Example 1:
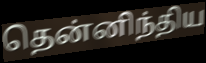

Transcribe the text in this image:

தென்னிந்திய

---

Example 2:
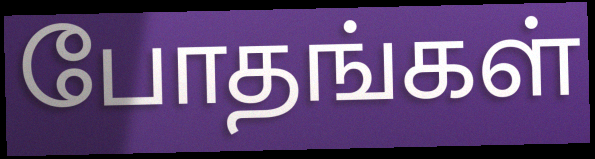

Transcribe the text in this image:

போதங்கள்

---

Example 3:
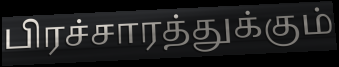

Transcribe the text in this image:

பிரச்சாரத்துக்கும்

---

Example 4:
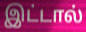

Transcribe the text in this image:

இட்டால்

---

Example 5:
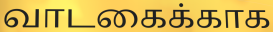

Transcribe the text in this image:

வாடகைக்காக